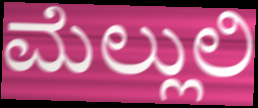
ಮೆಲ್ಲುಲಿ